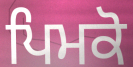
ਪਿਮਕੋ